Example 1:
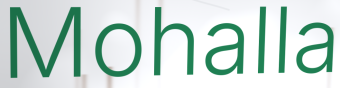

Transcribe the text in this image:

Mohalla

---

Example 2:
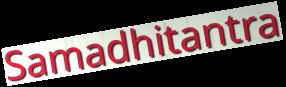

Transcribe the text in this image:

Samadhitantra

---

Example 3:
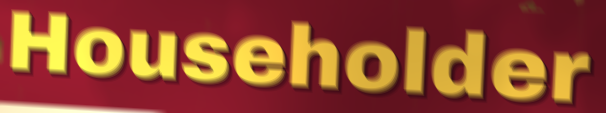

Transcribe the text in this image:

Householder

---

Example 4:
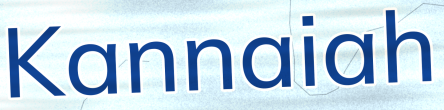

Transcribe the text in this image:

Kannaiah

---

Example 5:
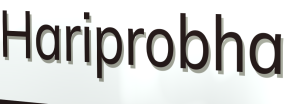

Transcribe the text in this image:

Hariprobha